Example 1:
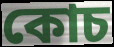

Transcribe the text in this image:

কোচ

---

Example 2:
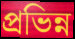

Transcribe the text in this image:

প্রভিন্ন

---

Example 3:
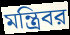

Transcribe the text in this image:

মন্ত্রিবর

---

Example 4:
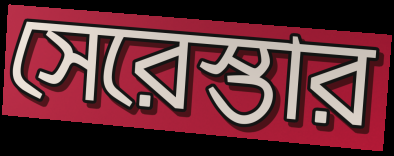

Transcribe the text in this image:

সেরেস্তার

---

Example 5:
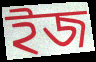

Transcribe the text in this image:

ইজ